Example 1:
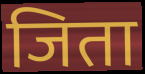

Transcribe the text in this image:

जिता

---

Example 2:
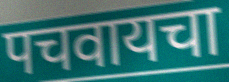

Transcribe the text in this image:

पचवायचा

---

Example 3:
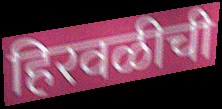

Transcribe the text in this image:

हिरवळीची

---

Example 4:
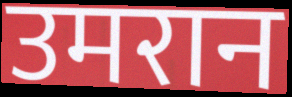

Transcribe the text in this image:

उमरान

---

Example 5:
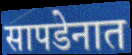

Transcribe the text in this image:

सापडेनात